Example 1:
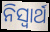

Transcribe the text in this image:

ନିସ୍ୱାର୍ଥ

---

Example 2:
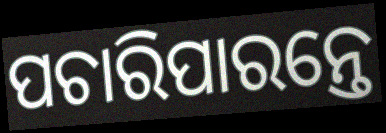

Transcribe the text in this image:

ପଚାରିପାରନ୍ତେ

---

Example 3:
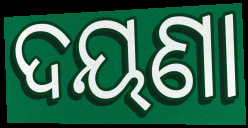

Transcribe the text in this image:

ଦୟଣା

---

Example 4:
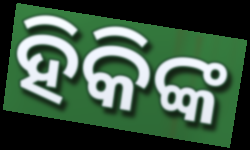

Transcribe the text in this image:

ହିକିଙ୍କ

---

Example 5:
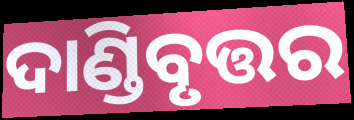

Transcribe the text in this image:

ଦାଣ୍ଡିବୃତ୍ତର